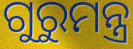
ଗୁରୁମନ୍ତ୍ର